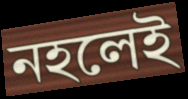
নহলেই